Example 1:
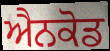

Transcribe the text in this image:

ਐਨਕੋਡ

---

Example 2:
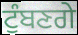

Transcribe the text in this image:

ਟੁੰਬਣਗੇ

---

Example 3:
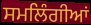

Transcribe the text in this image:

ਸਮਲਿੰਗੀਆਂ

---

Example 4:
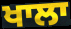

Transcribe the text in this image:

ਖਾਲਾ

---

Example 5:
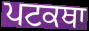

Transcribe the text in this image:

ਪਟਕਥਾ